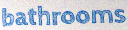
bathrooms